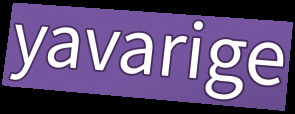
yavarige